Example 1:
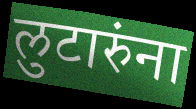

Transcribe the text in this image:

लुटारुंना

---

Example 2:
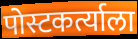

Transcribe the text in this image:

पोस्टकर्त्याला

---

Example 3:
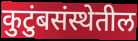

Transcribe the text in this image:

कुटुंबसंस्थेतील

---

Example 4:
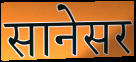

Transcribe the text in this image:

सानेसर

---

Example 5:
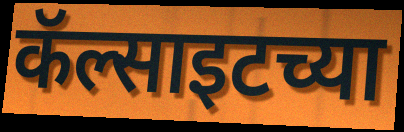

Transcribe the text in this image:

कॅल्साइटच्या